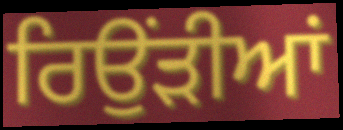
ਰਿਉਂੜੀਆਂ